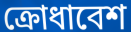
ক্রোধাবেশ